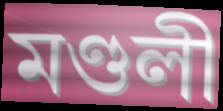
মণ্ডলী